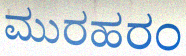
ಮುರಹರಂ